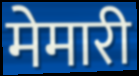
मेमारी